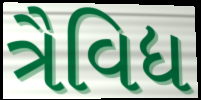
ત્રૈવિદ્ય